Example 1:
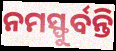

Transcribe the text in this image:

ନମସ୍ଫୁର୍ବନ୍ତି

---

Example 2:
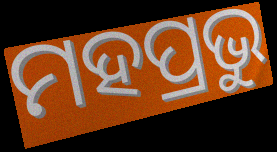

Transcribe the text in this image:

ମହପ୍ରଭୁ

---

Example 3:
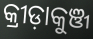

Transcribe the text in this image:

କ୍ରୀଡ଼ାକୁଞ୍ଜ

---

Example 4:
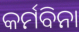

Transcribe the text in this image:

କର୍ମବିନା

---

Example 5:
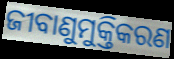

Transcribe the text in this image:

ଜୀବାଣୁମୁକ୍ତିକରଣ